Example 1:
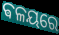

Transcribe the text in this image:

ଵଳୟରେ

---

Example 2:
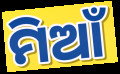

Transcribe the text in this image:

ମିଆଁ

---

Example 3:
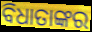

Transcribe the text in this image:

ବିଧାତାଙ୍କର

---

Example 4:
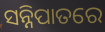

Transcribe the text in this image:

ସନ୍ନିପାତରେ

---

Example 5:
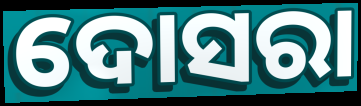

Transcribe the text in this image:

ଦୋସରା